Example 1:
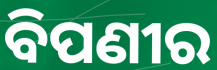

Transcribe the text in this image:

ବିପଣୀର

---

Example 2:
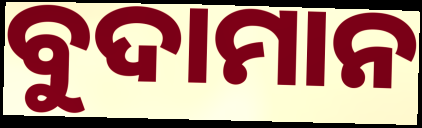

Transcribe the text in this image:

ବୁଦାମାନ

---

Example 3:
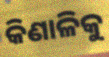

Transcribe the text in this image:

କିଣାଳିକୁ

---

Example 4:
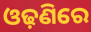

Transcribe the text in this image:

ଓଢ଼ଣିରେ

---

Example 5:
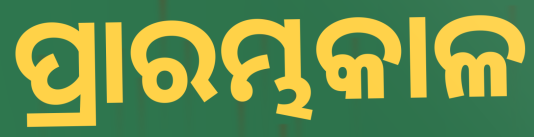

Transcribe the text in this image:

ପ୍ରାରମ୍ଭକାଳ